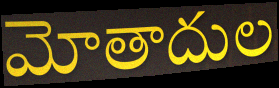
మోతాదుల